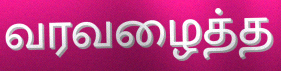
வரவழைத்த